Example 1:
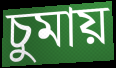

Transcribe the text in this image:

চুমায়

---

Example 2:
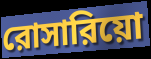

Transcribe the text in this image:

রোসারিয়ো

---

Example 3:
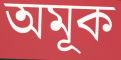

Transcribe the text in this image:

অমূক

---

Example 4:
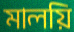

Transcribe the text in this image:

মালয়ি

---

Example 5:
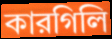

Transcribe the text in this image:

কারগিলি